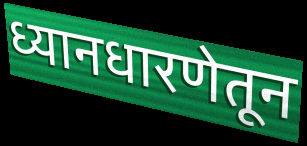
ध्यानधारणेतून